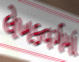
લેખકવર્ગમાં